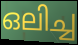
ഒലിച്ച